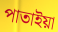
পাতাইয়া